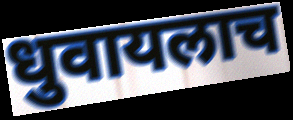
धुवायलाच